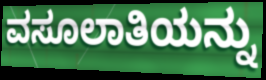
ವಸೂಲಾತಿಯನ್ನು